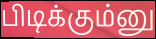
பிடிக்கும்னு